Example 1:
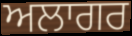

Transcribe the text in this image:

ਅਲਾਗਰ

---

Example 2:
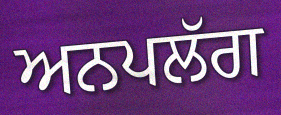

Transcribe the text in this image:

ਅਨਪਲੱਗ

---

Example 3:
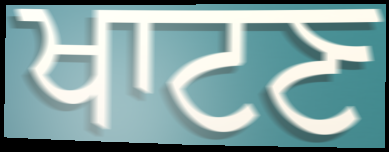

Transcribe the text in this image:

ਖਾਟਣ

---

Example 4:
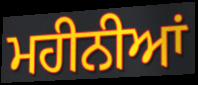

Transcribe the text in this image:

ਮਹੀਨੀਆਂ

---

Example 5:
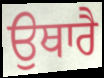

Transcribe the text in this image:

ਉਥਾਰੈ